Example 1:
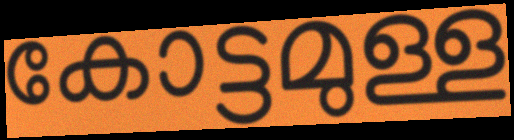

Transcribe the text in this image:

കോട്ടമുള്ള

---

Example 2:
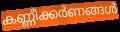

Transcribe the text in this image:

കണ്ണീക്കർണങ്ങൾ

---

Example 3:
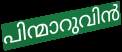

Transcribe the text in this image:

പിന്മാറുവിൻ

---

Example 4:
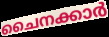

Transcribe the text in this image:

ചൈനക്കാർ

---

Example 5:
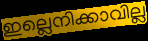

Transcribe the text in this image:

ഇല്ലെനിക്കാവില്ല